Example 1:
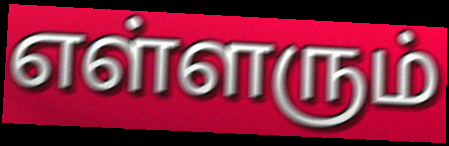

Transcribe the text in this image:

எள்ளரும்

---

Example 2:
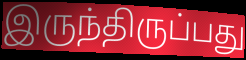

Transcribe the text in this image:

இருந்திருப்பது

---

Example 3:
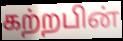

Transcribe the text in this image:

கற்றபின்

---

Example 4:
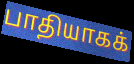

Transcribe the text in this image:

பாதியாகக்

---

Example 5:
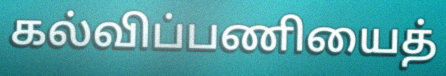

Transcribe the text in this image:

கல்விப்பணியைத்